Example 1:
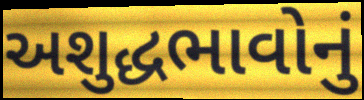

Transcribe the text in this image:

અશુદ્ધભાવોનું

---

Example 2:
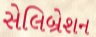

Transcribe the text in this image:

સેલિબ્રેશન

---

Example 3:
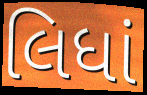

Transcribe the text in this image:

લિધાં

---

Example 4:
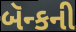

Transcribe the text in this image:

બૅન્કની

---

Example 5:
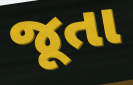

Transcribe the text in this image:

જૂતા